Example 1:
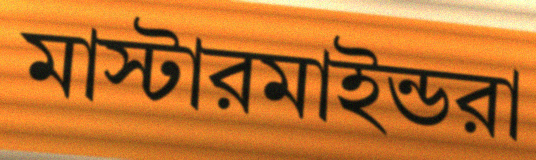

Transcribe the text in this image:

মাস্টারমাইন্ডরা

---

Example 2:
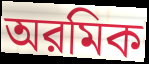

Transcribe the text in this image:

অরমিক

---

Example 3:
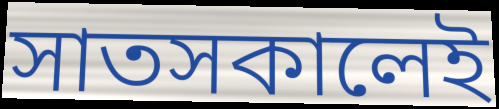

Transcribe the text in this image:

সাতসকালেই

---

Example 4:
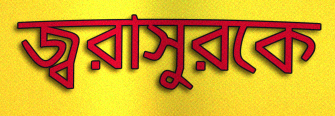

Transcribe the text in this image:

জ্বরাসুরকে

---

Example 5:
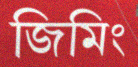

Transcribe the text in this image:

জিমিং